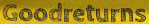
Goodreturns